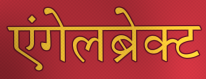
एंगेलब्रेक्ट